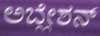
ಅಬ್ಲೇಶನ್